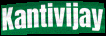
Kantivijay